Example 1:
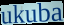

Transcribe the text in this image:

ukuba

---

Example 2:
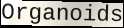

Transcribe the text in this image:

Organoids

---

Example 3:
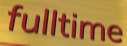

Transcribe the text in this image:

fulltime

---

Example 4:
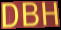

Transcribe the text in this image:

DBH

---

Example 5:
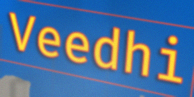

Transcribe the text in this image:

Veedhi